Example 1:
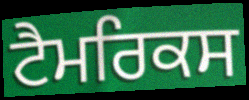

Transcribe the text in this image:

ਟੈਮਰਿਕਸ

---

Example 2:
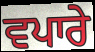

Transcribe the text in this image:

ਵਪਾਰੇ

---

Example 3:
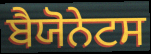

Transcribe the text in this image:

ਬੈਯੋਨੇਟਸ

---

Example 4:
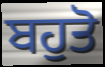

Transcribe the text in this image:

ਬਹੁਤੋ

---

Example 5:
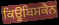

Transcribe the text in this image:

ਕਿਊਬਿਸਕੈਨ